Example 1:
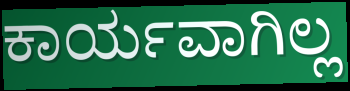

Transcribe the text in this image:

ಕಾರ್ಯವಾಗಿಲ್ಲ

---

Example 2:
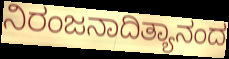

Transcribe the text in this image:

ನಿರಂಜನಾದಿತ್ಯಾನಂದ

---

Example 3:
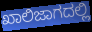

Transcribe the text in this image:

ಖಾಲಿಜಾಗದಲ್ಲಿ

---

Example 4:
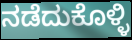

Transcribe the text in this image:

ನಡೆದುಕೊಳ್ಳಿ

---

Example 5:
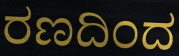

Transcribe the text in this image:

ರಣದಿಂದ